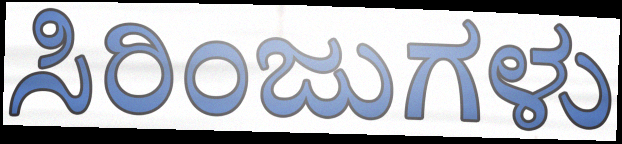
ಸಿರಿಂಜುಗಳು